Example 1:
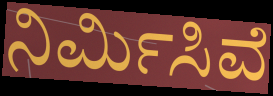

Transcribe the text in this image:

ನಿರ್ಮಿಸಿವೆ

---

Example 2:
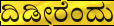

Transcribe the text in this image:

ದಿಡೀರೆಂದು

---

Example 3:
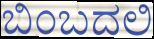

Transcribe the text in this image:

ಬಿಂಬದಲಿ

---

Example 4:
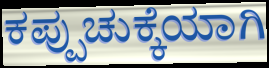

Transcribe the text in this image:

ಕಪ್ಪುಚುಕ್ಕೆಯಾಗಿ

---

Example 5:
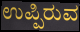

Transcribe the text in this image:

ಉಪ್ಪಿರುವ